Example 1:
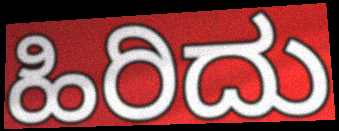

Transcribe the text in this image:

ಹಿರಿದು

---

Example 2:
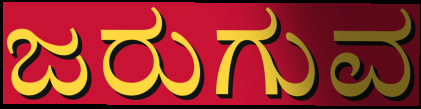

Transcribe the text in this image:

ಜರುಗುವ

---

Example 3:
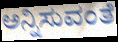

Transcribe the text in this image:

ಅನ್ನಿಸುವಂತೆ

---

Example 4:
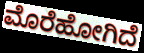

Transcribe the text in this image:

ಮೊರೆಹೋಗಿದೆ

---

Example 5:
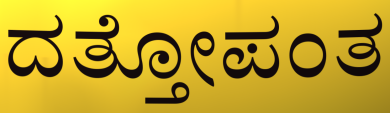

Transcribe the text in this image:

ದತ್ತೋಪಂತ